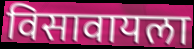
विसावायला